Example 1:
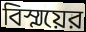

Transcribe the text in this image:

বিস্ময়ের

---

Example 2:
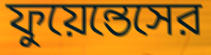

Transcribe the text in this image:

ফুয়েন্তেসের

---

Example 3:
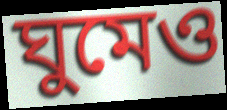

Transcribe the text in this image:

ঘুমেও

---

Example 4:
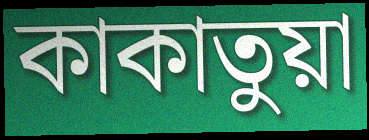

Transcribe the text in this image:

কাকাতুয়া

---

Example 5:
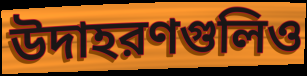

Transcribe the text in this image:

উদাহরণগুলিও